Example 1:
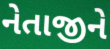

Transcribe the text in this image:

નેતાજીને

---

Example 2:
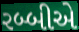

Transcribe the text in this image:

રબ્બીએ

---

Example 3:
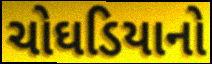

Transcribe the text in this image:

ચોઘડિયાનો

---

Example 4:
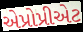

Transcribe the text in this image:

એપ્રોપ્રીએટ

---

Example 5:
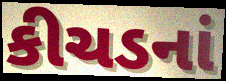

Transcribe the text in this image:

કીચડનાં